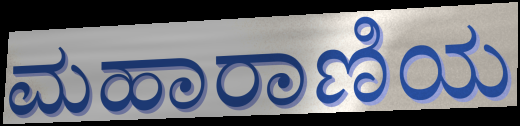
ಮಹಾರಾಣಿಯ